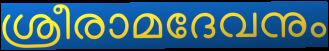
ശ്രീരാമദേവനും